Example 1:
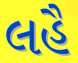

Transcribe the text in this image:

લહૈ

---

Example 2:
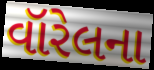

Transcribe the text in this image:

વૉરેલના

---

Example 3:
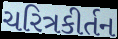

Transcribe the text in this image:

ચરિત્રકીર્તન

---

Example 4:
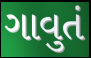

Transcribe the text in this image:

ગાવુતં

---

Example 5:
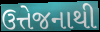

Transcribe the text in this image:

ઉત્તેજનાથી